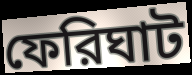
ফেরিঘাট